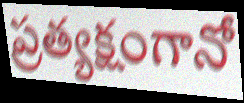
ప్రత్యక్షంగానో